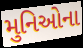
મુનિઓના